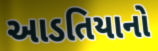
આડતિયાનો